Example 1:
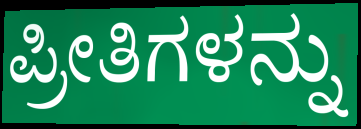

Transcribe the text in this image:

ಪ್ರೀತಿಗಳನ್ನು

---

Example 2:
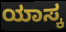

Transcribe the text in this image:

ಯಾಸ್ಕ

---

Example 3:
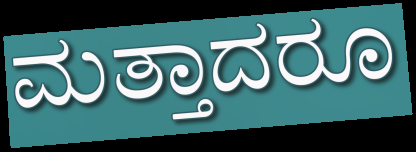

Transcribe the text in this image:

ಮತ್ತಾದರೂ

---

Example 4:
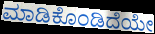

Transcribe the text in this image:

ಮಾಡಿಕೊಂಡಿದೆಯೇ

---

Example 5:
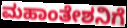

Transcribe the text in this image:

ಮಹಾಂತೇಶನಿಗೆ